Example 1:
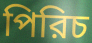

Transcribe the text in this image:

পিরিচ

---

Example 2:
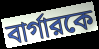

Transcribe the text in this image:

বার্গারকে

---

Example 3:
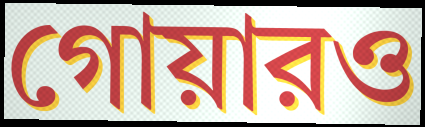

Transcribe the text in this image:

গোয়ারও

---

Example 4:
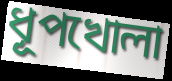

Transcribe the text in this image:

ধূপখোলা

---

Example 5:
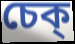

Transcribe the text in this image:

চেক্